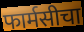
फार्मसीचा